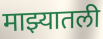
माझ्यातली